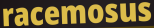
racemosus